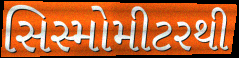
સિસ્મોમીટરથી